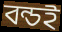
বন্ডই